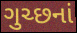
ગુચ્છનાં